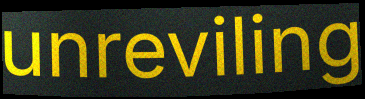
unreviling